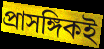
প্রাসঙ্গিকই